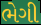
ભેગી